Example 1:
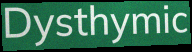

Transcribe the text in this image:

Dysthymic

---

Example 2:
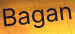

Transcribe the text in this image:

Bagan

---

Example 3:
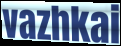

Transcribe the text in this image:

vazhkai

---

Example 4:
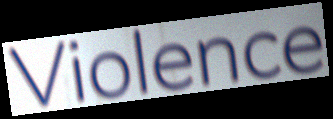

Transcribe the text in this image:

Violence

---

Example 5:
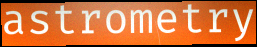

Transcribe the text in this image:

astrometry